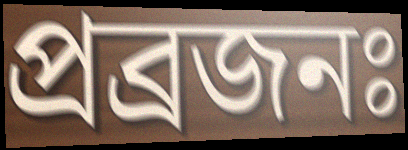
প্ৰব্ৰজনঃ